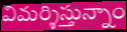
విమర్శిస్తున్నాం